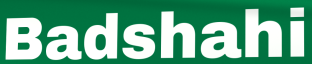
Badshahi